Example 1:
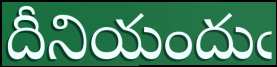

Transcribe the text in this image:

దీనియందుఁ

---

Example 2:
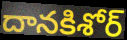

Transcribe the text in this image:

దానకిశోర్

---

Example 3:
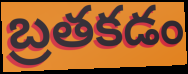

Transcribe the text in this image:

బ్రతకడం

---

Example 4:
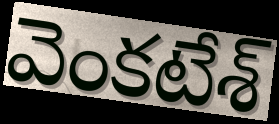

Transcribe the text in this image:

వెంకటేశ్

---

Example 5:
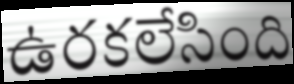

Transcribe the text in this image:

ఉరకలేసింది